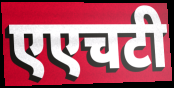
एएचटी